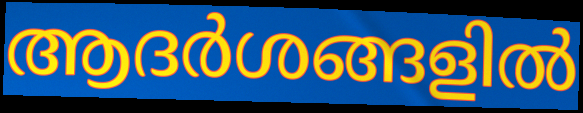
ആദർശങ്ങളിൽ